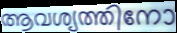
ആവശ്യത്തിനോ